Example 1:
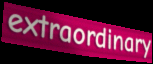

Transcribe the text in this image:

extraordinary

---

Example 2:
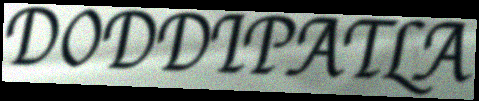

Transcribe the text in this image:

DODDIPATLA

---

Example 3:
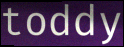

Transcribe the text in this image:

toddy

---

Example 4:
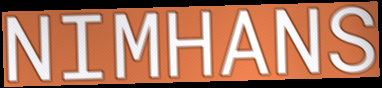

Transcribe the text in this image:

NIMHANS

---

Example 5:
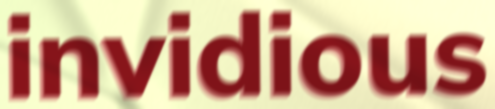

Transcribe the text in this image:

invidious